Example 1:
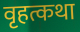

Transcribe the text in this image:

वृहत्कथा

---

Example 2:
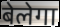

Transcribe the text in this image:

बेलेगा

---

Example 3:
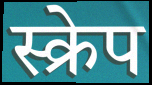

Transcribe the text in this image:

स्क्रेप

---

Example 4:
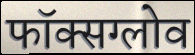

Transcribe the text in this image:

फॉक्सग्लोव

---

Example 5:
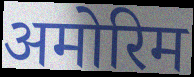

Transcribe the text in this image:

अमोरिम